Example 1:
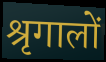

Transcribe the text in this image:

श्रृगालों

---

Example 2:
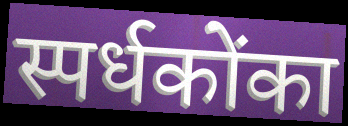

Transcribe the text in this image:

स्पर्धकोंका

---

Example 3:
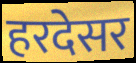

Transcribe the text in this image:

हरदेसर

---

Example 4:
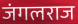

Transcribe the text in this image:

जंगलराज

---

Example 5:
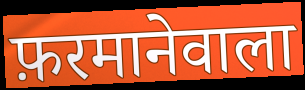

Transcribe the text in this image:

फ़रमानेवाला